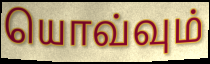
யொவ்வும்